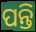
ପନ୍ତି